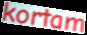
kortam